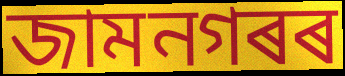
জামনগৰৰ